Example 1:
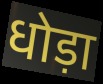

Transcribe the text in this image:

धोड़ा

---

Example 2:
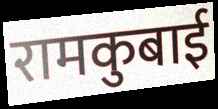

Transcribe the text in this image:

रामकुबाई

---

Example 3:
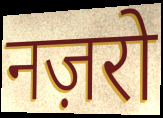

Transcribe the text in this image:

नज़रो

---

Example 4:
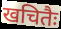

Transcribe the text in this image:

खचितैः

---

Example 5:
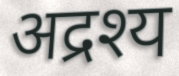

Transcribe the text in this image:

अद्रश्य